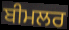
ਬੀਮਲਰ